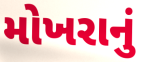
મોખરાનું